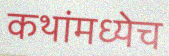
कथांमध्येच